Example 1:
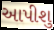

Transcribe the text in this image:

આપીશુ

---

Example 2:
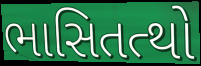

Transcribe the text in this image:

ભાસિતત્થો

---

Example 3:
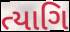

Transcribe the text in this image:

ત્યાગિ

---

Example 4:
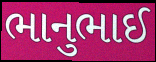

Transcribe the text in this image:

ભાનુભાઈ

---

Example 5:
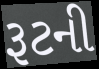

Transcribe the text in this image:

રૂટની